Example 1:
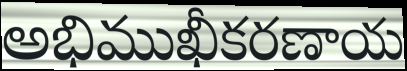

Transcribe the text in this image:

అభిముఖీకరణాయ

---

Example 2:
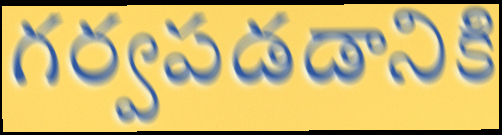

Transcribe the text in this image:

గర్వపడడానికి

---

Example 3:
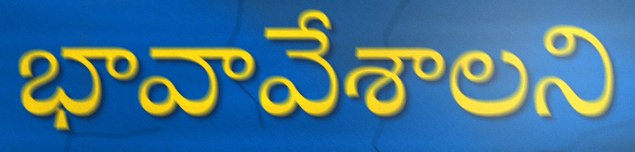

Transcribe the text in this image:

భావావేశాలని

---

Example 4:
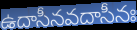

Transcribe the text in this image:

ఉదాసీనవదాసీనః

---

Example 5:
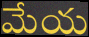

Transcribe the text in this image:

మేయ